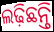
ଲଢ଼ିଛନ୍ତି